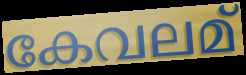
കേവലമ്